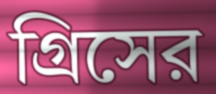
গ্রিসের